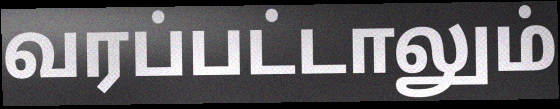
வரப்பட்டாலும்